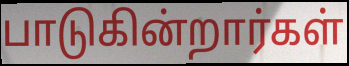
பாடுகின்றார்கள்